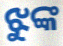
ଝୁଙ୍କ